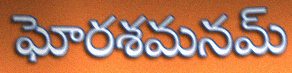
ఘోరశమనమ్